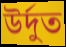
উৰ্দুত